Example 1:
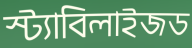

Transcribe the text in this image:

স্ট্যাবিলাইজড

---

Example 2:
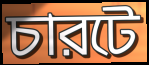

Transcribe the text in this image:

চারটে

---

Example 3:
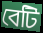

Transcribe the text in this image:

বেটি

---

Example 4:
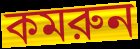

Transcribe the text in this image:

কমরুন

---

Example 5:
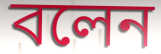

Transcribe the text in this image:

বলেন